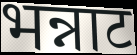
भन्नाट